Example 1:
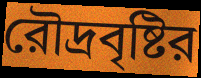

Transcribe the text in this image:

রৌদ্রবৃষ্টির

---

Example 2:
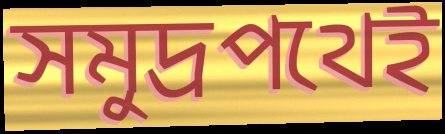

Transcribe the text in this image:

সমুদ্রপথেই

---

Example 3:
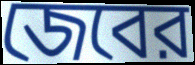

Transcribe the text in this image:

জেবের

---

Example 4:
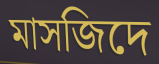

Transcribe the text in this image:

মাসজিদে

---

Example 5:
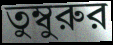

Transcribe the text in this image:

তুম্বুরুর